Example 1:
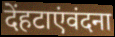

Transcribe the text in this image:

देंहटाएंवंदना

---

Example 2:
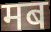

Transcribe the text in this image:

मब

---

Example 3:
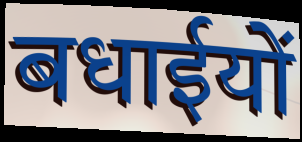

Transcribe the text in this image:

बधाईयों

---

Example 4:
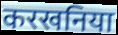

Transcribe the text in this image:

करखनिया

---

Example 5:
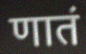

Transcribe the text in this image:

णातं